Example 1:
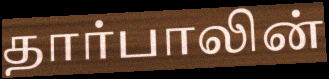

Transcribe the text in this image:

தார்பாலின்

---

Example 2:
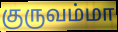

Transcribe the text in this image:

குருவம்மா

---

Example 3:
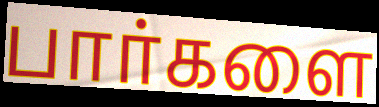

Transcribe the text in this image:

பார்களை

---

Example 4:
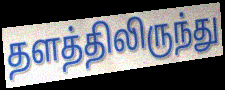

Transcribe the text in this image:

தளத்திலிருந்து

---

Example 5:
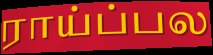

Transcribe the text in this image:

ராய்ப்பல